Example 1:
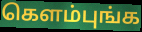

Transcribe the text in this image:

கெளம்புங்க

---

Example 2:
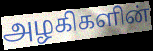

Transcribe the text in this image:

அழகிகளின்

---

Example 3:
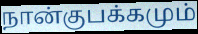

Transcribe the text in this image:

நான்குபக்கமும்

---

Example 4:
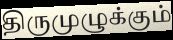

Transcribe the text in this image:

திருமுழுக்கும்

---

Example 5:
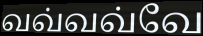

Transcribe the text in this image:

வவ்வவ்வே